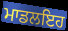
ਮਾਡਲਇਹ